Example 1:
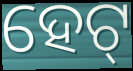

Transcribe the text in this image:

ହେଟ୍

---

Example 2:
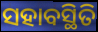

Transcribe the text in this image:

ସହାବସ୍ଥିତି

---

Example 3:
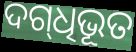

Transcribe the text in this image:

ଦଗ୍‌ଧିଭୂତ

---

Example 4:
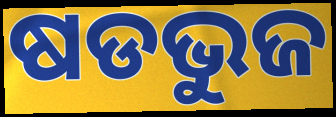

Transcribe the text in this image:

ଷଡଭୁଜ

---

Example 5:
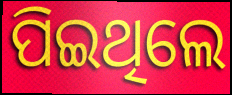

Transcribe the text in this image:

ପିଇଥିଲେ